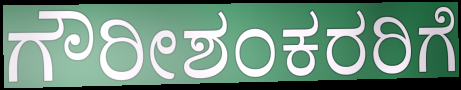
ಗೌರೀಶಂಕರರಿಗೆ